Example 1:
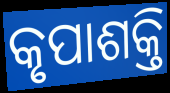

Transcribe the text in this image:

କୃପାଶକ୍ତି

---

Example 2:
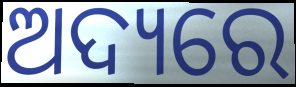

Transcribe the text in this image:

ଅଦ୍ୟରେ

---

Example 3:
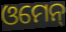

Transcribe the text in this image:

ଓମେନ୍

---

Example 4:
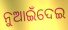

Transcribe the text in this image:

ନୁଆଇଁଦେଇ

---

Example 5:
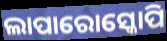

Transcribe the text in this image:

ଲାପାରୋସ୍କୋପି